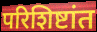
परिशिष्टांत